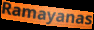
Ramayanas